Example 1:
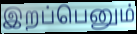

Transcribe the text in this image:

இறப்பெனும்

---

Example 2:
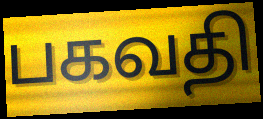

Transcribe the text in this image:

பகவதி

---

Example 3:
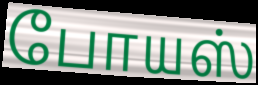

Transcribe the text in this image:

போயஸ்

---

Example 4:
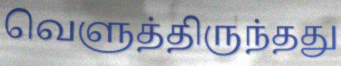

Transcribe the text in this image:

வெளுத்திருந்தது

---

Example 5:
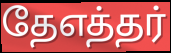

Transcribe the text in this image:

தேஎத்தர்